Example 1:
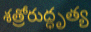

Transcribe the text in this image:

శత్రోరుద్ధృత్య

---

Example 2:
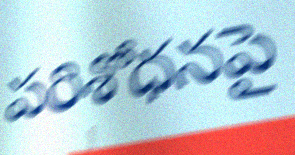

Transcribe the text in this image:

పరిశోధనపై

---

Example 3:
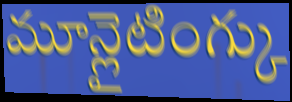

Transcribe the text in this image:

మూన్లైటింగ్కు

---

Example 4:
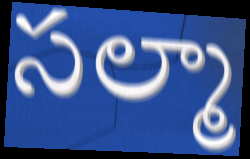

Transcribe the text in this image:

సల్మా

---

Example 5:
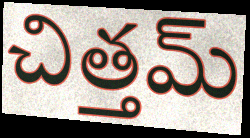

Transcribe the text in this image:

చిత్తమ్